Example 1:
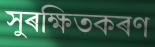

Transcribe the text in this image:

সুৰক্ষিতকৰণ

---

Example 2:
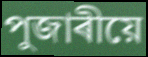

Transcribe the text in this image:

পুজাৰীয়ে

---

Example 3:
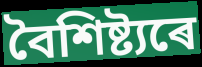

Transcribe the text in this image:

বৈশিষ্ট্যৰে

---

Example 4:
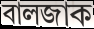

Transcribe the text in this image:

বালজাক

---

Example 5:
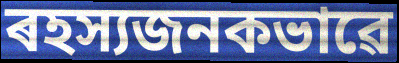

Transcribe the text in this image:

ৰহস্যজনকভাৱে